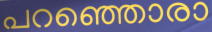
പറഞ്ഞൊരാ